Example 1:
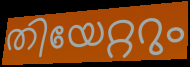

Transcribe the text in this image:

തിയേറ്ററും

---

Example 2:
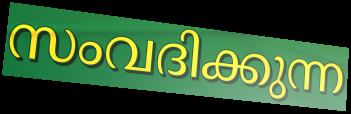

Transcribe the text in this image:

സംവദിക്കുന്ന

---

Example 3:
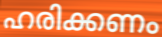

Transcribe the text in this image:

ഹരിക്കണം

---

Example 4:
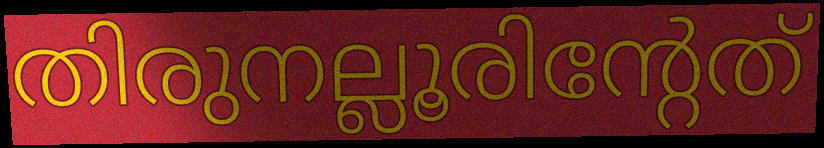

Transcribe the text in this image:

തിരുനല്ലൂരിന്റേത്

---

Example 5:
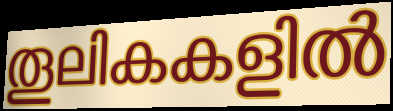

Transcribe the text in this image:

തൂലികകളിൽ